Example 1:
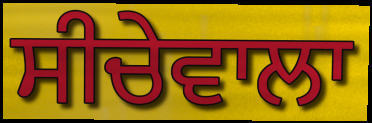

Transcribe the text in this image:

ਸੀਚੇਵਾਲਾ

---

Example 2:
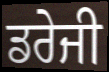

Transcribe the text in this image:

ਡਰੇਜੀ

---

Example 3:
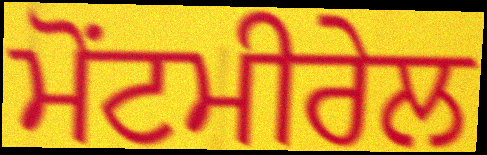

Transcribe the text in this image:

ਮੋਂਟਮੀਰੇਲ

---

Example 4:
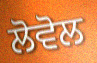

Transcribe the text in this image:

ਲੋਵੋਲ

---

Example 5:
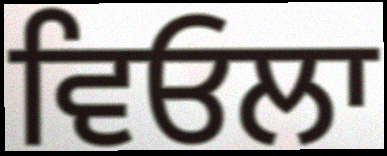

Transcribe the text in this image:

ਵਿਓਲਾ